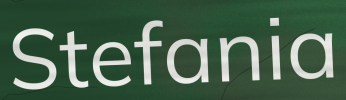
Stefania